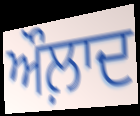
ਔਲ਼ਾਦ